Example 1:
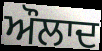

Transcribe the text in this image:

ਔਲਾਦ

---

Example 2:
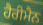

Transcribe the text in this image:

ਹੈਰੀਮੈਨ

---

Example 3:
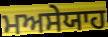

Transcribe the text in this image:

ਮਅਸੇਯਾਹ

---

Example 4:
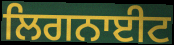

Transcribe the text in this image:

ਲਿਗਨਾਈਟ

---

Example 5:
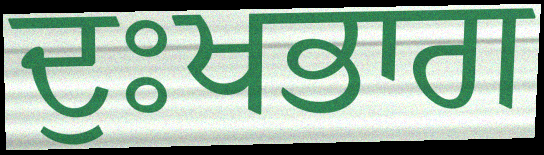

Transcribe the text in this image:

ਦੁਃਖਭਾਗ